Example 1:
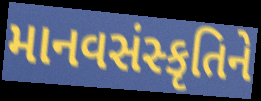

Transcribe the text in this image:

માનવસંસ્કૃતિને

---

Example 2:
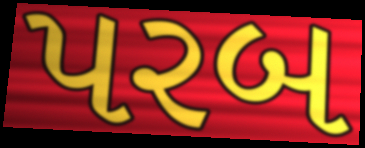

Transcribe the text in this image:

પરબ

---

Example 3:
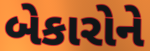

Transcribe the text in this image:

બેકારોને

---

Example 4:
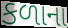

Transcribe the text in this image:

કળાના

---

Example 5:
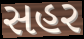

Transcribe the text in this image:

સહર